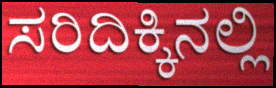
ಸರಿದಿಕ್ಕಿನಲ್ಲಿ